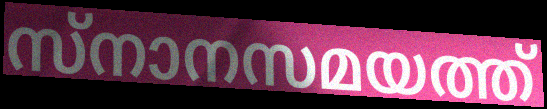
സ്നാനസമയത്ത്